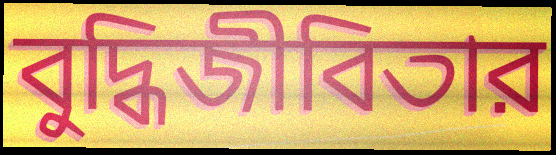
বুদ্ধিজীবিতার